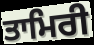
ਤਾਮਿਰੀ